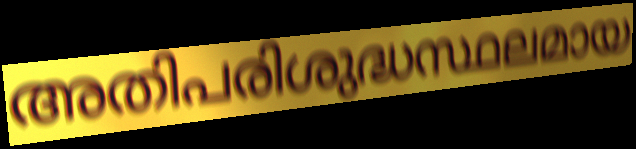
അതിപരിശുദ്ധസ്ഥലമായ